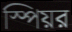
স্পিয়র